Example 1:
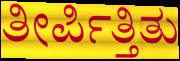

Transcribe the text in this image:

ತೀರ್ಪಿತ್ತಿತು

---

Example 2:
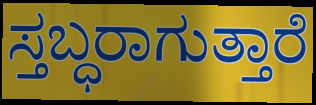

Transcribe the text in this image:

ಸ್ತಬ್ಧರಾಗುತ್ತಾರೆ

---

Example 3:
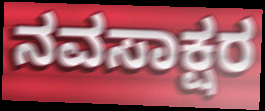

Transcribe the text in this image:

ನವಸಾಕ್ಷರ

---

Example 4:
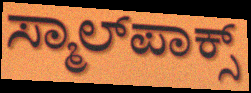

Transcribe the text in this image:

ಸ್ಮಾಲ್‌ಪಾಕ್ಸ್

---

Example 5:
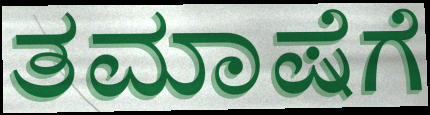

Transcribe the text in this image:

ತಮಾಷೆಗೆ